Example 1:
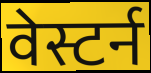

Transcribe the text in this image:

वेस्‍टर्न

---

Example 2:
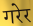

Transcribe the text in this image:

गरेर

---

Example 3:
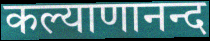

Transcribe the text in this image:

कल्याणानन्द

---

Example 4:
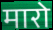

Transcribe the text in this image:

मारो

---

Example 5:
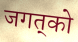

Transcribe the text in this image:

जगत्‌को